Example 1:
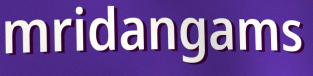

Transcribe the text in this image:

mridangams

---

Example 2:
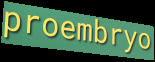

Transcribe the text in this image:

proembryo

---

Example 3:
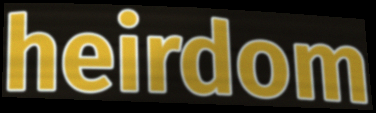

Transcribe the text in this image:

heirdom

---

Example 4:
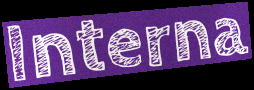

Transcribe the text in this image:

Interna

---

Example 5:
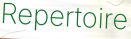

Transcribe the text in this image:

Repertoire